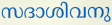
സദാശിവനു